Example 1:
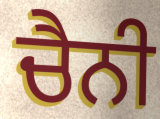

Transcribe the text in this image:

ਚੈਨੀ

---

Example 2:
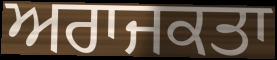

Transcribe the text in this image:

ਅਰਾਜਕਤਾ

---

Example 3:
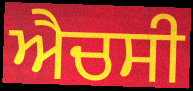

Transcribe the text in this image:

ਐਚਸੀ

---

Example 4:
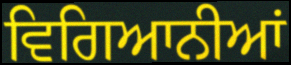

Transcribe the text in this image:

ਵਿਗਿਆਨੀਆਂ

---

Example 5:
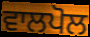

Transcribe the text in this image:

ਵਾਲਪੋਲ